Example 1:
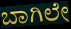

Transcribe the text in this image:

ಬಾಗಿಲೇ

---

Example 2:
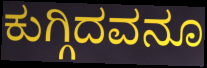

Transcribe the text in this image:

ಕುಗ್ಗಿದವನೂ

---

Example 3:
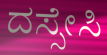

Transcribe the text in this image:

ದಸ್ಸೇಸಿ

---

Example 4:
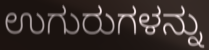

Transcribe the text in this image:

ಉಗುರುಗಳನ್ನು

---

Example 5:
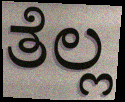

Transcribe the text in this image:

ತೆಲ್ಲ